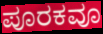
ಪೂರಕವೂ